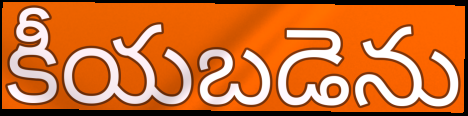
కీయబడెను